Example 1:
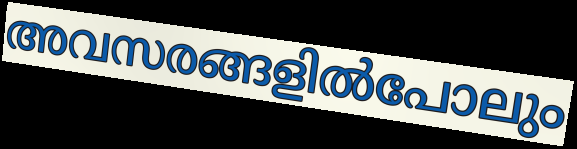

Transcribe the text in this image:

അവസരങ്ങളിൽപോലും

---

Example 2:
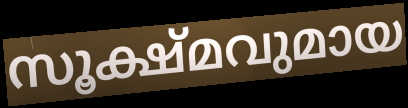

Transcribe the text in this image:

സൂക്ഷ്മവുമായ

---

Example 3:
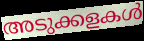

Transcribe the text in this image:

അടുക്കളകൾ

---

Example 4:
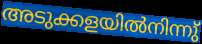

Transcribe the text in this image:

അടുക്കളയിൽനിന്നു്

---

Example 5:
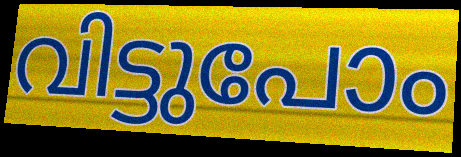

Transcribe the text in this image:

വിട്ടുപോം